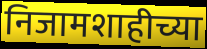
निजामशाहीच्या